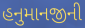
હનુમાનજીની